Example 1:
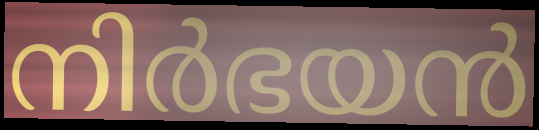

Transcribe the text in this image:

നിർഭയൻ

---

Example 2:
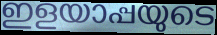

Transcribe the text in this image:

ഇളയാപ്പയുടെ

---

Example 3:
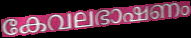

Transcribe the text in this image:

കേവലഭാഷണം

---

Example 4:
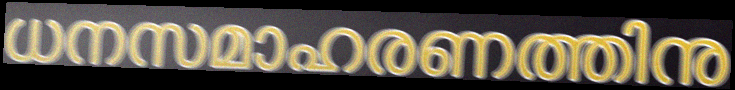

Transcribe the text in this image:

ധനസമാഹരണത്തിനു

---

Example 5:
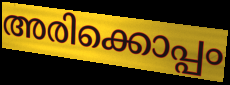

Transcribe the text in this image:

അരിക്കൊപ്പം